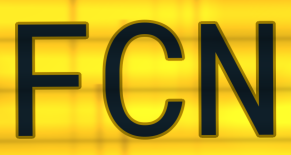
FCN